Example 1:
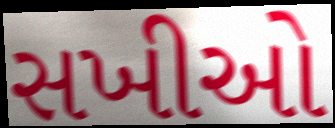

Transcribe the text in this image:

સખીઓ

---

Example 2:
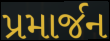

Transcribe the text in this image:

પ્રમાર્જન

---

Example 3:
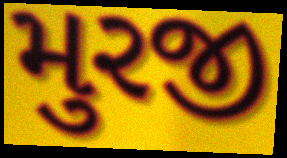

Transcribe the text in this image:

મુરજી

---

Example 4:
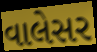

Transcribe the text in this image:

વાલેસર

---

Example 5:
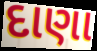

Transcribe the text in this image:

દાણા